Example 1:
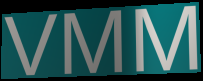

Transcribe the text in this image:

VMM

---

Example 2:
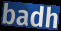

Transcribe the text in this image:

badh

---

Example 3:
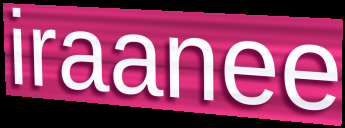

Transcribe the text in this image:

iraanee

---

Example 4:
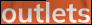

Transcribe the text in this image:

outlets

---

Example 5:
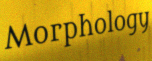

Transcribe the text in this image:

Morphology